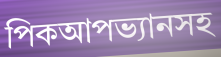
পিকআপভ্যানসহ